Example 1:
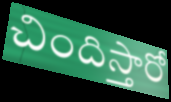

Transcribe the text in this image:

చిందిస్తారో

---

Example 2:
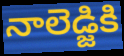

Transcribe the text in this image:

నాలెడ్జికి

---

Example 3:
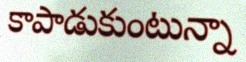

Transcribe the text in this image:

కాపాడుకుంటున్నా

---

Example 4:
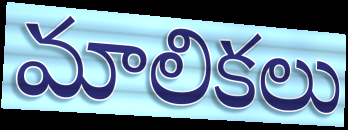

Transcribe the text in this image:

మాలికలు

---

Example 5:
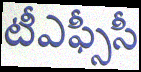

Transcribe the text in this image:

టీఎఫ్సీసీ